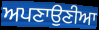
ਅਪਣਾਉਣੀਆ